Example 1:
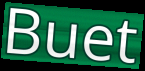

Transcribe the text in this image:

Buet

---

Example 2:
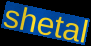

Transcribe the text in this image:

shetal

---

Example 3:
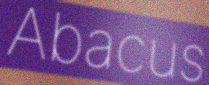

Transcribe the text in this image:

Abacus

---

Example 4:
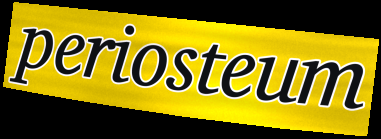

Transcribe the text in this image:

periosteum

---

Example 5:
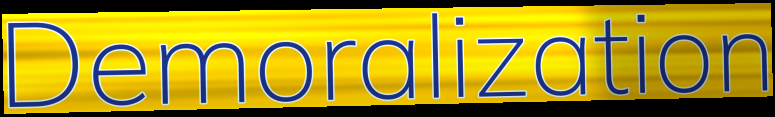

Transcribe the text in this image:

Demoralization